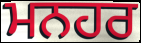
ਮਨਹਰ